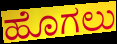
ಹೊಗಲು